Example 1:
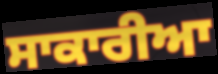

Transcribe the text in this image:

ਸਾਕਾਰੀਆ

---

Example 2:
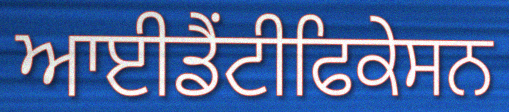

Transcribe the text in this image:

ਆਈਡੈਂਟੀਫਿਕੇਸਨ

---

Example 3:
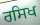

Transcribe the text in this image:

ਰਸਿਖ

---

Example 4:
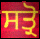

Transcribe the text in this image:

ਸਤ੍ਰੋ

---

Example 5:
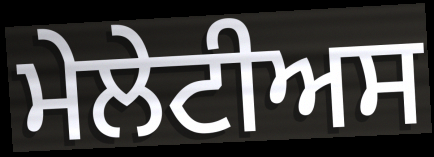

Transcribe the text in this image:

ਮੇਲੇਟੀਅਸ